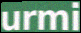
urmi